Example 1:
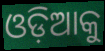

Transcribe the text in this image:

ଓଡ଼ିଆକୁ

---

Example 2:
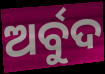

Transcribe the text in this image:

ଅର୍ବୁଦ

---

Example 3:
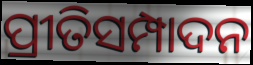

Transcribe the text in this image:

ପ୍ରୀତିସମ୍ପାଦନ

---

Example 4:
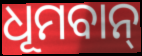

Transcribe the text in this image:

ଧୂମବାନ୍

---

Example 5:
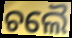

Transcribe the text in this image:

ଚଲୈ